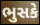
ભુસકે